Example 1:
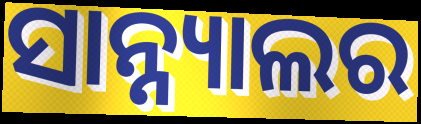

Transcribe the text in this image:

ସାନ୍ନ୍ୟାଲର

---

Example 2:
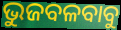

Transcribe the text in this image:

ଭୁଜବଳବାବୁ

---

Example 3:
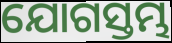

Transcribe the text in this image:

ଯୋଗସ୍ତମ୍ଭ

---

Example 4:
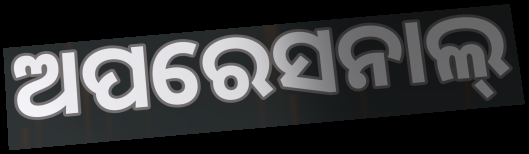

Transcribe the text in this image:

ଅପରେସନାଲ୍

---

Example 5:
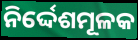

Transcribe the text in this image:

ନିର୍ଦ୍ଦେଶମୂଳକ